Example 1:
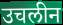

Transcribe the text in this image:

उचलीन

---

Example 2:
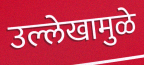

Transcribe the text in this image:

उल्लेखामुळे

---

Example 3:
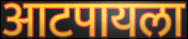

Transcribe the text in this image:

आटपायला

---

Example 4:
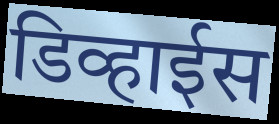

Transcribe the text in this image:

डिव्हाईस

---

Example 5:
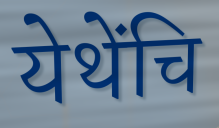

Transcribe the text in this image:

येथेंचि